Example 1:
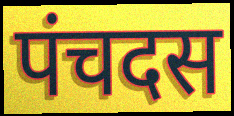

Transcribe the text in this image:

पंचदस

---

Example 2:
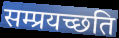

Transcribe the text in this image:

सम्प्रयच्छति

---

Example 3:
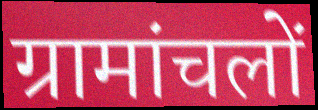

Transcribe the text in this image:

ग्रामांचलों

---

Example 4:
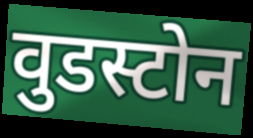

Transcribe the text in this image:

वुडस्टोन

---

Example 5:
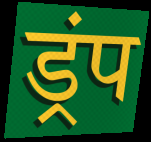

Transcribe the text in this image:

ड्रंप